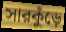
সারকুঁড়ে